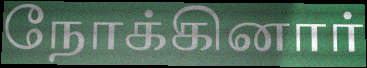
நோக்கினார்